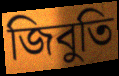
জিবুতি